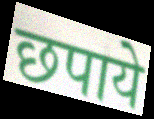
छपाये